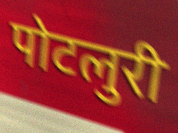
पोटलुरी